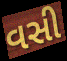
વસી